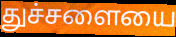
துச்சளையை